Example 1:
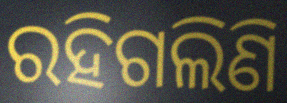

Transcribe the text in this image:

ରହିଗଲିଣି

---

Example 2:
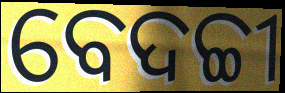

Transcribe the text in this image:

ବେଦଚ୍ଚୀ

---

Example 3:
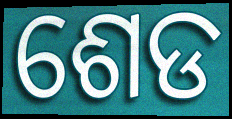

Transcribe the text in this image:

ଶେଡ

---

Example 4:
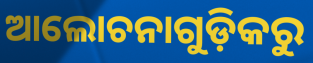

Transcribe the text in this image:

ଆଲୋଚନାଗୁଡ଼ିକରୁ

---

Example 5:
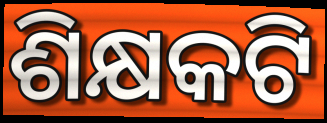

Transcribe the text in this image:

ଶିକ୍ଷକଟି